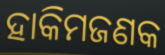
ହାକିମଜଣକ